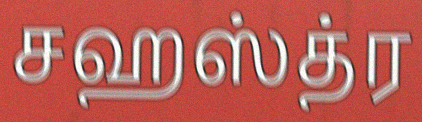
சஹஸ்த்ர